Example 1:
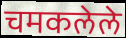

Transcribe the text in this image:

चमकलेले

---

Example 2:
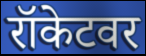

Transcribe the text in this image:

रॉकेटवर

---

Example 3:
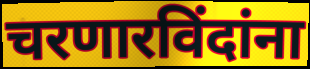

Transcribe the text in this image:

चरणारविंदांना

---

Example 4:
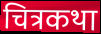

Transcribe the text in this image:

चित्रकथा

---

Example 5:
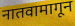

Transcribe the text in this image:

नातवामागून